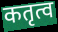
कतृत्व